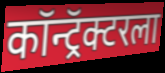
कॉन्ट्रॅक्टरला